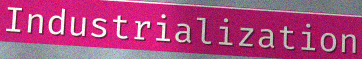
Industrialization